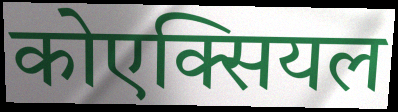
कोएक्सियल